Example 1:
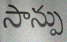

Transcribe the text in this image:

సాన్పు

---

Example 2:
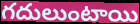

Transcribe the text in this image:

గదులుంటాయి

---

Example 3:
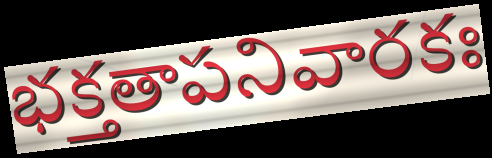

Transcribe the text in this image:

భక్తతాపనివారకః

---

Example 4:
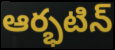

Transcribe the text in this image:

ఆర్భటిన్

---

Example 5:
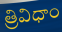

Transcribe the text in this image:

త్రివిధాం